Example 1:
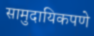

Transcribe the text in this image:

सामुदायिकपणे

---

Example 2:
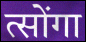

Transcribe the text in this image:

त्सोंगा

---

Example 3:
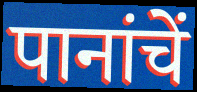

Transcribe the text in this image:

पानांचें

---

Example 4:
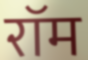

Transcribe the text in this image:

रॉम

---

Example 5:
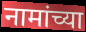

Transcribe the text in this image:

नामांच्या